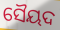
ସୈୟଦ